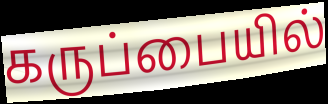
கருப்பையில்